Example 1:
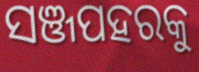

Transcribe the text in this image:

ସଞ୍ଜପହରକୁ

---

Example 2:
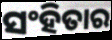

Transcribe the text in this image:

ସଂହିତାର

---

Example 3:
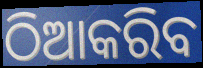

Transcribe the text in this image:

ଠିଆକରିବ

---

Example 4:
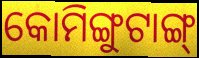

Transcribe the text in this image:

କୋମିଙ୍ଗୁଟାଙ୍ଗ୍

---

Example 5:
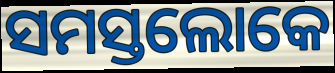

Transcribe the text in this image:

ସମସ୍ତଲୋକେ